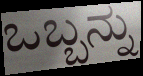
ಒಬ್ಬನ್ನು